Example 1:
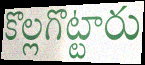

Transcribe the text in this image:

కొల్లగొట్టారు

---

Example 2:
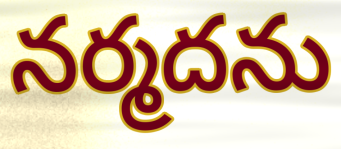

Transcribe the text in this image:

నర్మదను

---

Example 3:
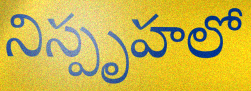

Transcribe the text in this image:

నిస్పృహలో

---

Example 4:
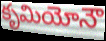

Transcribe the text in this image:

కృమియోనౌ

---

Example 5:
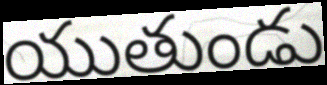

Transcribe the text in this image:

యుతుండు